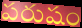
పరుషం